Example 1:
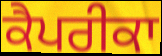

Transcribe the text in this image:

ਕੈਪਰੀਕਾ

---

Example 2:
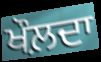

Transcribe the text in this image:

ਖੌਲ਼ਦਾ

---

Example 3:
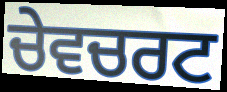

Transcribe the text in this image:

ਚੇਵਚਰਟ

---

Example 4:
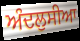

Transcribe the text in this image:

ਅੰਦਲੁਸੀਆ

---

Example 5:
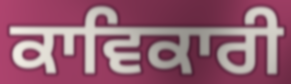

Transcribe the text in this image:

ਕਾਵਿਕਾਰੀ